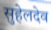
सुहेलदेव